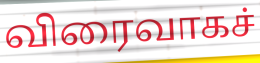
விரைவாகச்